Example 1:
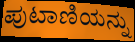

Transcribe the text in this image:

ಪುಟಾಣಿಯನ್ನು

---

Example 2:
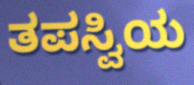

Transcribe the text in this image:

ತಪಸ್ವಿಯ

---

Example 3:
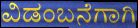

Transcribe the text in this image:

ವಿಡಂಬನೆಗಾಗಿ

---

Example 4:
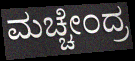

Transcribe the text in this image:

ಮಚ್ಚೇಂದ್ರ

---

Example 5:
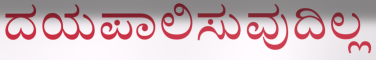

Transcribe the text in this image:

ದಯಪಾಲಿಸುವುದಿಲ್ಲ